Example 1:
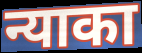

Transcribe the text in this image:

न्याका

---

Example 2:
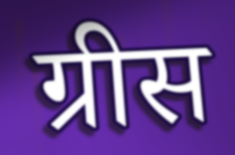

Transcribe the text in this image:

ग्रीस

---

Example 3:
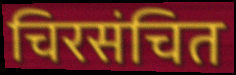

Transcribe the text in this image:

चिरसंचित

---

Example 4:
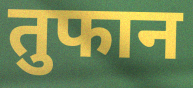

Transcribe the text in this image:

तुफान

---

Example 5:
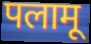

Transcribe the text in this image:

पलामू